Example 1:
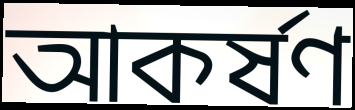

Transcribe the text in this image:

আকর্ষণ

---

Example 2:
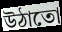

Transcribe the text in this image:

উঠাতো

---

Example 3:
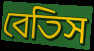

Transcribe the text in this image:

বেতিস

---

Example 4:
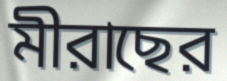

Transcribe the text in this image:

মীরাছের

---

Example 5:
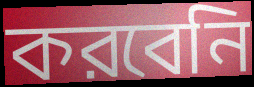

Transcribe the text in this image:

করবেনি